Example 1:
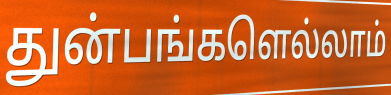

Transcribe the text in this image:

துன்பங்களெல்லாம்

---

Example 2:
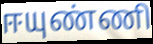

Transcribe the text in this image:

ஈயுண்ணி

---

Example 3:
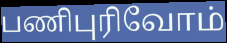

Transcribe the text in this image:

பணிபுரிவோம்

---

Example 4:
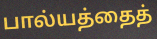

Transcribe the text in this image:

பால்யத்தைத்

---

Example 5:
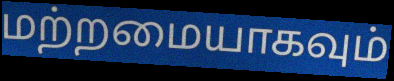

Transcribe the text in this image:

மற்றமையாகவும்